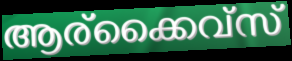
ആര്ക്കൈവ്സ്